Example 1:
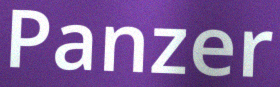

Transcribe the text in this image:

Panzer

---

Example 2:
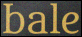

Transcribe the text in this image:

bale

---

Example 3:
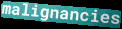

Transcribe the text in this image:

malignancies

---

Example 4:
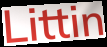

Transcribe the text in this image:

Littin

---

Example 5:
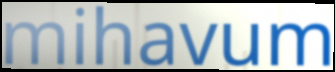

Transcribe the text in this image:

mihavum